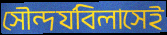
সৌন্দর্যবিলাসেই